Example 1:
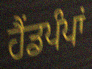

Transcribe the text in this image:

ਹੈਂਡਪੰਪਾਂ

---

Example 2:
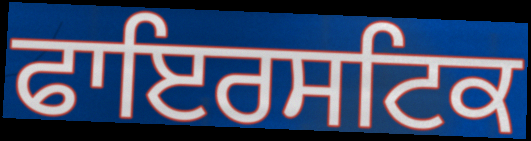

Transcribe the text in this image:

ਫਾਇਰਸਟਿਕ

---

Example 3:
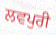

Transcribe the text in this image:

ਲਵਪੁਰੀ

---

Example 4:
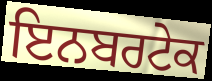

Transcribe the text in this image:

ਇਨਬਰਟੇਕ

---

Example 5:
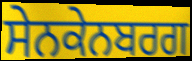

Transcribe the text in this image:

ਸੇਨਕੇਨਬਰਗ